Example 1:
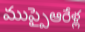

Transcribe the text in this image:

ముప్పైఆరేళ్ల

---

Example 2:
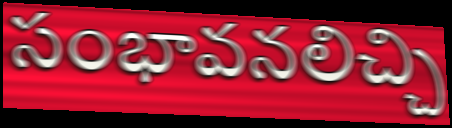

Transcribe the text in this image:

సంభావనలిచ్చి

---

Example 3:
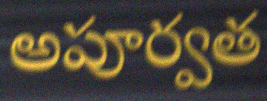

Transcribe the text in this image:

అపూర్వత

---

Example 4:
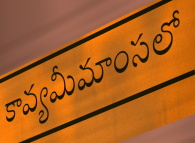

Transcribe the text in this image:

కావ్యమీమాంసలో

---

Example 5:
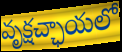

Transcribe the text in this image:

వృక్షచ్ఛాయలో